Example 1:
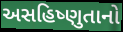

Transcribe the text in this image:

અસહિષ્ણુતાનો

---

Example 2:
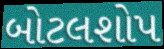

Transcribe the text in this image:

બોટલશોપ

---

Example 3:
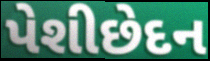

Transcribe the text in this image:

પેશીછેદન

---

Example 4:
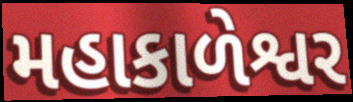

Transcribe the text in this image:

મહાકાળેશ્વર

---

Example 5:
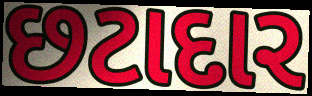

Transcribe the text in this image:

છટાદાર